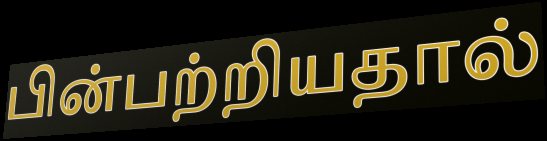
பின்பற்றியதால்